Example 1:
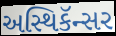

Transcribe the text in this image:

અસ્થિકૅન્સર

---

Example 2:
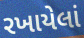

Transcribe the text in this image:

રખાયેલાં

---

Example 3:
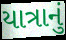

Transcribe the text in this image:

યાત્રાનું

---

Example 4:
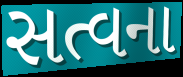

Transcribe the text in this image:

સત્વના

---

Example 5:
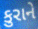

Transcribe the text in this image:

કુરાને